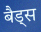
बैड्स